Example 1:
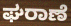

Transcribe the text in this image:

ಘರಾಣೆ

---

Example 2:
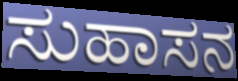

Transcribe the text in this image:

ಸುಹಾಸನ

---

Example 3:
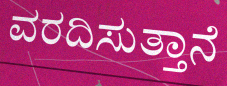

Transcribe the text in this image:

ವರದಿಸುತ್ತಾನೆ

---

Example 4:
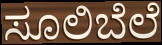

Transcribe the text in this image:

ಸೂಲಿಬೆಲೆ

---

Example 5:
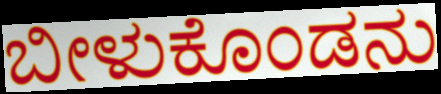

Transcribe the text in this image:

ಬೀಳುಕೊಂಡನು